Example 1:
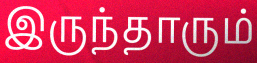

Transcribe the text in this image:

இருந்தாரும்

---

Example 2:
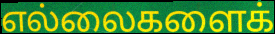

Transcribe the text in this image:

எல்லைகளைக்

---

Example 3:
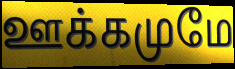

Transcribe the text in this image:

ஊக்கமுமே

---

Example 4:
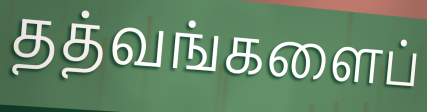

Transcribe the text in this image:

தத்வங்களைப்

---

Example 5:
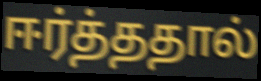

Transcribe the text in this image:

ஈர்த்ததால்